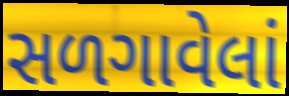
સળગાવેલાં